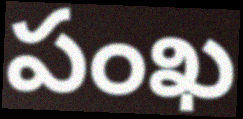
పంఖ